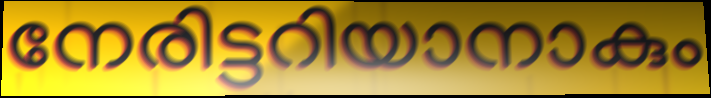
നേരിട്ടറിയാനാകും